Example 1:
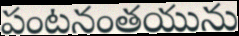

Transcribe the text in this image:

పంటనంతయును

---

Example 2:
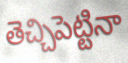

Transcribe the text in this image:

తెచ్చిపెట్టినా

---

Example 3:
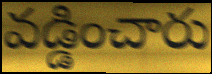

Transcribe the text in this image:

వడ్డించారు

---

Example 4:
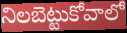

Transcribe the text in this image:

నిలబెట్టుకోవాలో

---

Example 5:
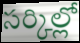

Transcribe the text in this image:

సర్కిల్లో